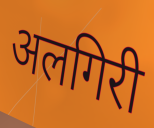
अलगिरी